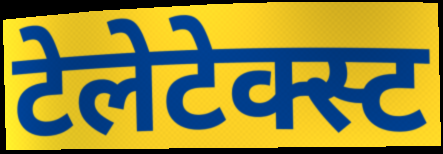
टेलेटेक्स्ट